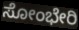
ಸೋಂಭೇರಿ